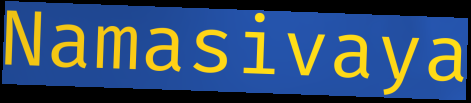
Namasivaya